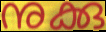
നുക്കു